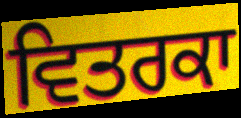
ਵਿਤਰਕਾ